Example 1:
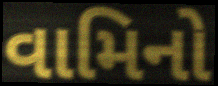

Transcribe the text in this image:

વામિનો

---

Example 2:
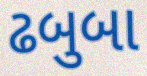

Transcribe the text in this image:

ઢબુબા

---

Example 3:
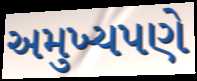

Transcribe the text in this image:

અમુખ્યપણે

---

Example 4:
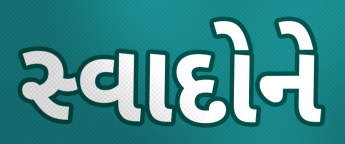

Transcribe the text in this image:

સ્વાદોને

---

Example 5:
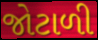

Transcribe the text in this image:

જોટાળી